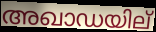
അഖാഡയില്